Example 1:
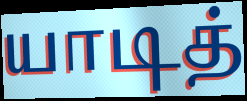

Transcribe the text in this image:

யாடித்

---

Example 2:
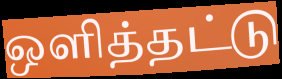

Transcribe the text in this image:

ஒளித்தட்டு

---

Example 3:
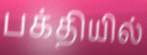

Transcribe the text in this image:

பக்தியில்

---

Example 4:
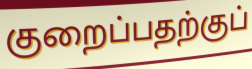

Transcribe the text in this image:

குறைப்பதற்குப்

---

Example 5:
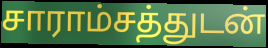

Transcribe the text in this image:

சாராம்சத்துடன்